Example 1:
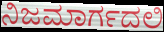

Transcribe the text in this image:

ನಿಜಮಾರ್ಗದಲಿ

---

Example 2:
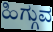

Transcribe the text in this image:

ಹಿಗ್ಗುವ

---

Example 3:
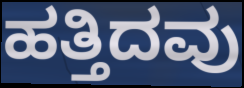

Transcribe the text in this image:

ಹತ್ತಿದವು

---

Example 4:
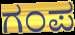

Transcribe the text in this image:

ಗಂಪ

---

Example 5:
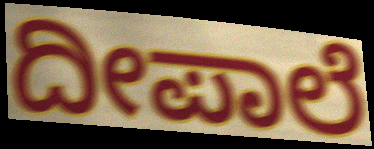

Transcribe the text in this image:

ದೀಪಾಲೆ